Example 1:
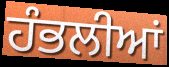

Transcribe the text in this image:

ਹੰਭਲੀਆਂ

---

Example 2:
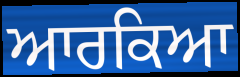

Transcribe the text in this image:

ਆਰਕਿਆ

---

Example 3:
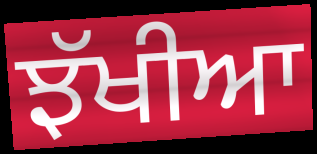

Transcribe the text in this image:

ਝੱਖੀਆ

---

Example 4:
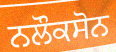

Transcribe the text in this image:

ਨਲੌਕਸੋਨ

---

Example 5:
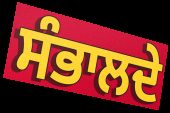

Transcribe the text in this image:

ਸੰਭਾਲਦੇ